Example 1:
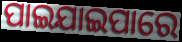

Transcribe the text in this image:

ପାଇଯାଇପାରେ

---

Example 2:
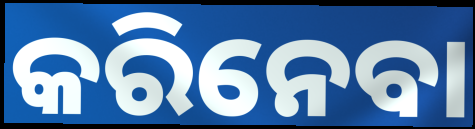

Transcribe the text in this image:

କରିନେବା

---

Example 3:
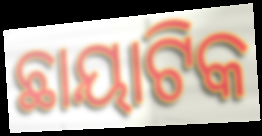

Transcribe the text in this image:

ଛାୟାଟିକ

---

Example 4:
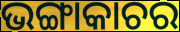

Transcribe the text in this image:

ଭଙ୍ଗାକାଚର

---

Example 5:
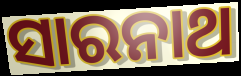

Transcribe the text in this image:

ସାରନାଥ